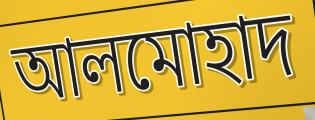
আলমোহাদ